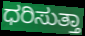
ಧರಿಸುತ್ತಾ